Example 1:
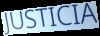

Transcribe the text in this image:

JUSTICIA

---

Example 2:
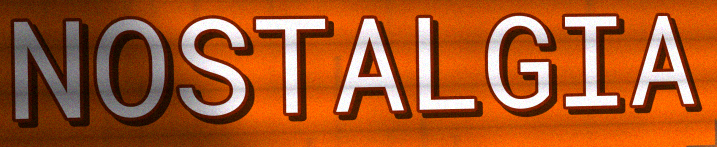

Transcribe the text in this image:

NOSTALGIA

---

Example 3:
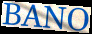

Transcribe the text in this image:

BANO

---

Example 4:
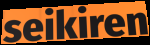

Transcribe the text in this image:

seikiren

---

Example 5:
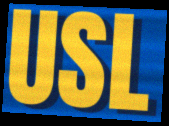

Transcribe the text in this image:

USL